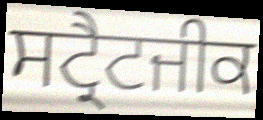
ਸਟ੍ਰੈਟਜੀਕ